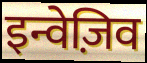
इन्वेज़िव